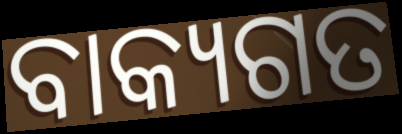
ବାକ୍ୟଗତ